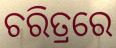
ଚରିତ୍ରରେ